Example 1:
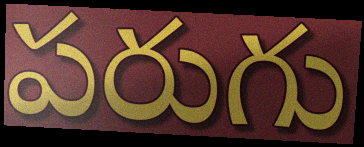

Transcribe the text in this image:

పరుగు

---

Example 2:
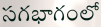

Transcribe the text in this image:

సగభాగంలో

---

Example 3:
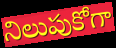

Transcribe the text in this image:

నిలుపుకోగా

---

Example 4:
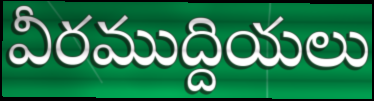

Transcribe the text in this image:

వీరముద్దియలు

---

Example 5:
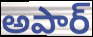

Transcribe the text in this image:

అపార్